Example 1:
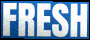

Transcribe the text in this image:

FRESH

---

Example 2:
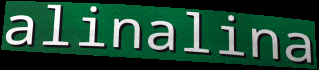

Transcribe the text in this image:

alinalina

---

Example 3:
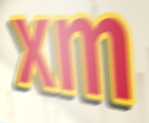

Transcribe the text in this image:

xm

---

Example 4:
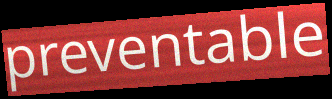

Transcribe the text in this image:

preventable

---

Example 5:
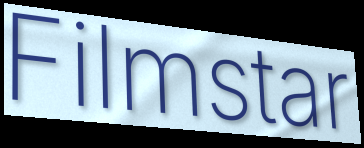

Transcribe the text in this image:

Filmstar